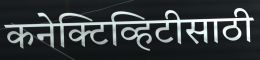
कनेक्टिव्हिटीसाठी